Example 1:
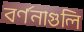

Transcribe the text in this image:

বর্ণনাগুলি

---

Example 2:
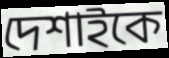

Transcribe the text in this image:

দেশাইকে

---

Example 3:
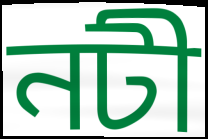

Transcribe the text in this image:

নটী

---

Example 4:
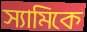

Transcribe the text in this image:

স্যামিকে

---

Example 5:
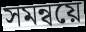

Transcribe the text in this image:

সমন্বয়ে